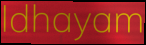
Idhayam